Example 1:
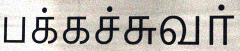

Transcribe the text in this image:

பக்கச்சுவர்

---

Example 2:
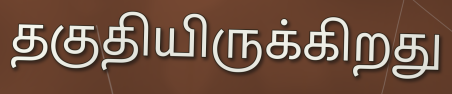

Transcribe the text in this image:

தகுதியிருக்கிறது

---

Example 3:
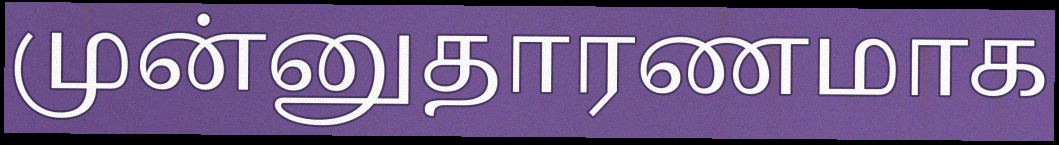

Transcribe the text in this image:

முன்னுதாரணமாக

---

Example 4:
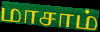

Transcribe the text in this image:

மாசாம்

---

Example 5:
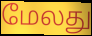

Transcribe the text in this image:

மேலது